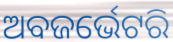
ଅବଜର୍ଭେଟରି